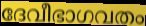
ദേവീഭാഗവതം